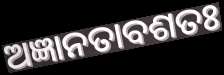
ଅଜ୍ଞାନତାବଶତଃ